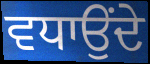
ਵਧਾਉਂਦੇ